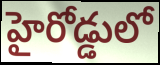
హైరోడ్డులో